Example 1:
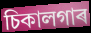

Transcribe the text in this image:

চিকালগাৰ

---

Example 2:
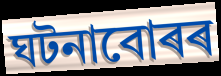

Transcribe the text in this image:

ঘটনাবোৰৰ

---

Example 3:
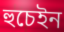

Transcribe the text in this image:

হুচেইন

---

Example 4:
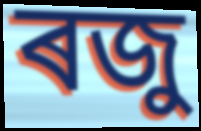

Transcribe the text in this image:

ৰজু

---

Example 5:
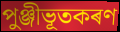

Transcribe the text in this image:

পুঞ্জীভূতকৰণ